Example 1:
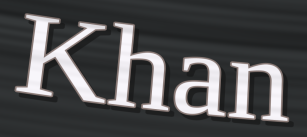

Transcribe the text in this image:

Khan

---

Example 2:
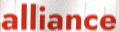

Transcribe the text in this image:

alliance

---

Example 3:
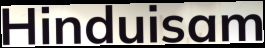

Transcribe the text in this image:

Hinduisam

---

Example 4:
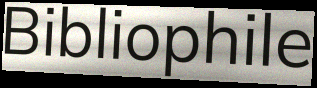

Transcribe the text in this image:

Bibliophile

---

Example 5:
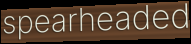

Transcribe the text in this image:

spearheaded